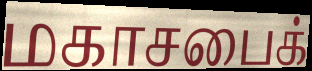
மகாசபைக்